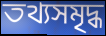
তথ্যসমৃদ্ধ